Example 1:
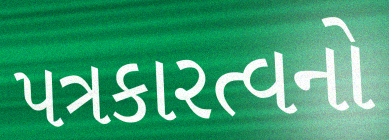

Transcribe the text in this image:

પત્રકારત્વનો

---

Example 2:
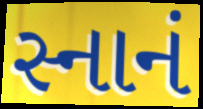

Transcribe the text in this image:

સ્નાનં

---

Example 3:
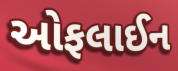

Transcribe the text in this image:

ઓફલાઈન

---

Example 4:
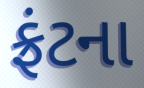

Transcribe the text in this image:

ફ્રંટના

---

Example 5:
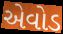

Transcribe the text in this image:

એવોડ